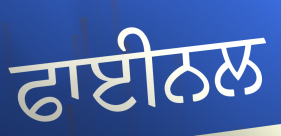
ਫਾਈਨਲ